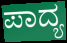
ಪಾದ್ಯ